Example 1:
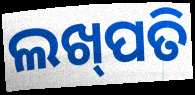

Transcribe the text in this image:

ଲଖ୍‌ପତି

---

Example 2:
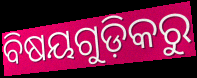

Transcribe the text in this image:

ବିଷୟଗୁଡ଼ିକରୁ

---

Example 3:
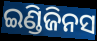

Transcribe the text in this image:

ଇଣ୍ଡିଜିନସ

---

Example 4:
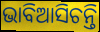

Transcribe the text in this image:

ଭାବିଆସିଚନ୍ତି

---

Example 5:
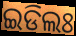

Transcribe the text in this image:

ଇଡିଲଃ